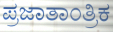
ಪ್ರಜಾತಾಂತ್ರಿಕ